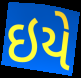
ઇયે